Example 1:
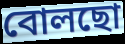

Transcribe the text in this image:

বোলছো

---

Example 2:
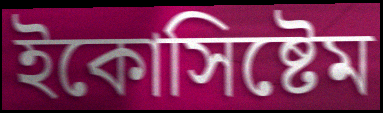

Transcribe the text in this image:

ইকোসিষ্টেম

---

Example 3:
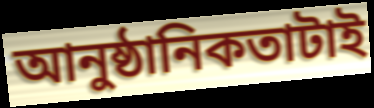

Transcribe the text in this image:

আনুষ্ঠানিকতাটাই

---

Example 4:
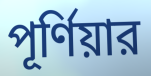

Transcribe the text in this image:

পূর্ণিয়ার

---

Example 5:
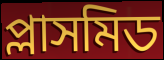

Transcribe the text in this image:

প্লাসমিড